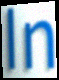
In